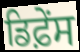
ਡਿਫ਼ੇੰਸ